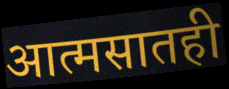
आत्मसातही